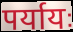
पर्यायः